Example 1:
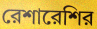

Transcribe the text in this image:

রেশারেশির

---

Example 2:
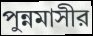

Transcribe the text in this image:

পুন্নমাসীর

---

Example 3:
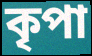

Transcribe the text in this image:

কৃপা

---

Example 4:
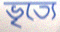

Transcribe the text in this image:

ভৃত্যে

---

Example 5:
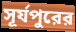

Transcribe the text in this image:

সূর্যপুরের